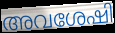
അവശേഷി